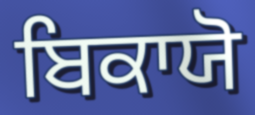
ਬਿਕਾਯੋ